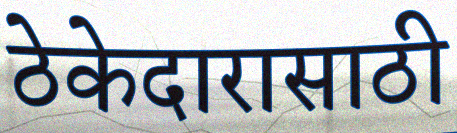
ठेकेदारासाठी